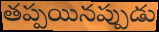
తప్పయినప్పుడు